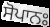
ਸੋਪਾਨਃ